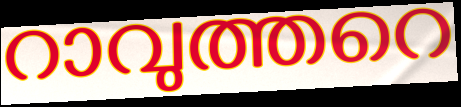
റാവുത്തറെ